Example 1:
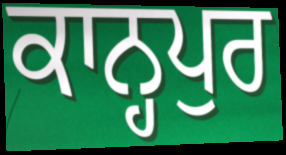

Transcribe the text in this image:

ਕਾਨ੍ਹਪੁਰ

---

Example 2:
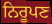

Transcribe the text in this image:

ਨਿਰੂਪਣ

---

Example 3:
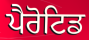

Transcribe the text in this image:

ਪੈਰੋਟਿਡ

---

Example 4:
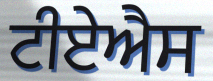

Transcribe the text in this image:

ਟੀਏਐਸ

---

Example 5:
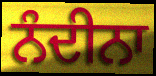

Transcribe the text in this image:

ਨੰਦੀਨਾ